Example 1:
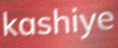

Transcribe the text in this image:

kashiye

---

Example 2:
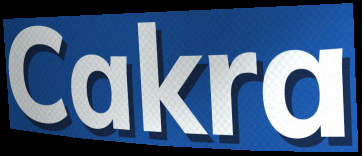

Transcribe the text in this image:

Cakra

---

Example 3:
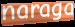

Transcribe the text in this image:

naraga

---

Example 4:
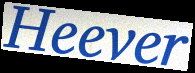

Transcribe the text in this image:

Heever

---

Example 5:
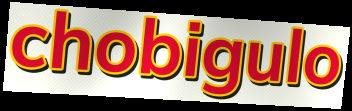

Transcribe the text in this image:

chobigulo